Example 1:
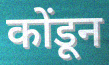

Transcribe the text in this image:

कोंडून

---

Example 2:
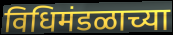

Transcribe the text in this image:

विधिमंडळाच्या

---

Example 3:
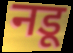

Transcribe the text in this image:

नडू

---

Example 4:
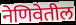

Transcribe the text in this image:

नेणिवेतील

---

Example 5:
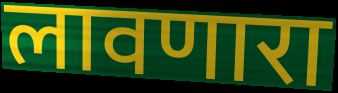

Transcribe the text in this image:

लावणारा